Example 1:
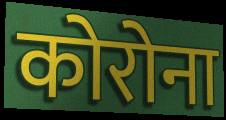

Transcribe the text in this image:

कोरोना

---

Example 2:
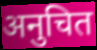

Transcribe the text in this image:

अनुचित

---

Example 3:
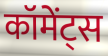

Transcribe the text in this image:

कॉमेंट्स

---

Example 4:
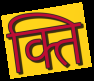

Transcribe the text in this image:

क्ति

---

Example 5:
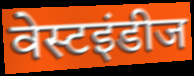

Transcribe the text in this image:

वेस्टइंडीज